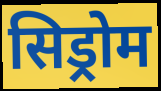
सिड्रोम